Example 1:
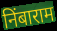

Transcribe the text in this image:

निंबाराम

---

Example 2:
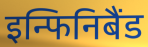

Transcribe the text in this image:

इन्फिनिबैंड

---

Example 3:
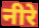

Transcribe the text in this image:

नीरे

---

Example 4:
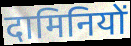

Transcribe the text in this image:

दामिनियों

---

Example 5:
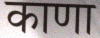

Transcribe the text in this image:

काणा